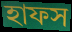
হাফস